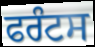
ਫਰੰਟਸ